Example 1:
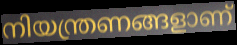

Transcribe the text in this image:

നിയന്ത്രണങ്ങളാണ്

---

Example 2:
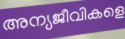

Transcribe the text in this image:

അന്യജീവികളെ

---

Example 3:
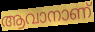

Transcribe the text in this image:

ആവാനാണ്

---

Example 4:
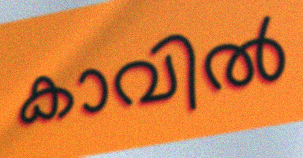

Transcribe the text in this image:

കാവിൽ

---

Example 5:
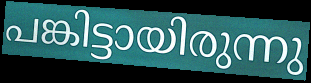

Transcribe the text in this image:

പങ്കിട്ടായിരുന്നു